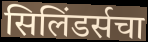
सिलिंडर्सचा